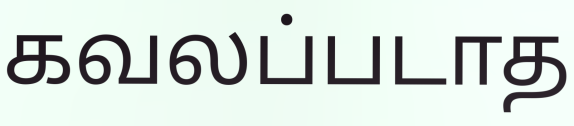
கவலப்படாத